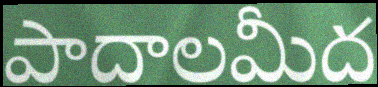
పాదాలమీద